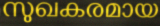
സുഖകരമായ